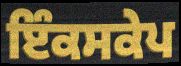
ਇੰਕਸਕੇਪ